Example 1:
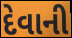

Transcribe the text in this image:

દેવાની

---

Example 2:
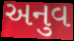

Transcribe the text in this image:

અનુવ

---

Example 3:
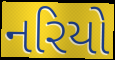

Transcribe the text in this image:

નરિયો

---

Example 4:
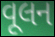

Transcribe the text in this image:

વૂલન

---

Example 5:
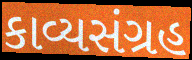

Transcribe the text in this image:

કાવ્યસંગ્રહ